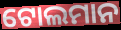
ଟୋଲମାନ